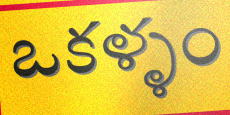
ఒకళ్ళం